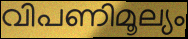
വിപണിമൂല്യം